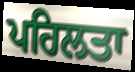
ਪਹਿਲਤਾ